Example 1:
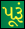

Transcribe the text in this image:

પૂરૂં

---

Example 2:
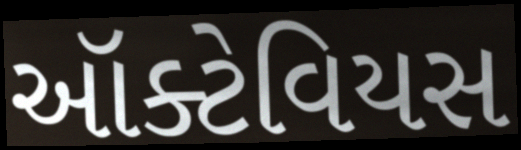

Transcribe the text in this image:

ઑક્ટેવિયસ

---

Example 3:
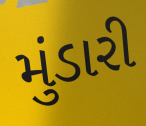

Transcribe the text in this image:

મુંડારી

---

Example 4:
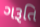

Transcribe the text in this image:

ગરૂતિ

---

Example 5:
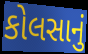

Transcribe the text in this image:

કોલસાનું